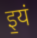
इ॒यं